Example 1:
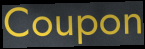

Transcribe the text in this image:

Coupon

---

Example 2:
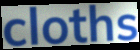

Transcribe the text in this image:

cloths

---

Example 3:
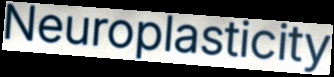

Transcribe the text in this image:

Neuroplasticity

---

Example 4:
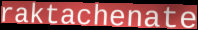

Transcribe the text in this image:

raktachenate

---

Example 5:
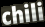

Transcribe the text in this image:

chili